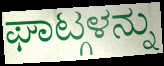
ಘಾಟ್ಗಳನ್ನು